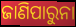
ଜାଣିପାରୁନା